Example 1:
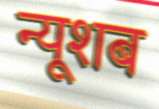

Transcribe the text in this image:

न्यूशब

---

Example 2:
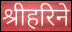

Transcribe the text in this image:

श्रीहरिने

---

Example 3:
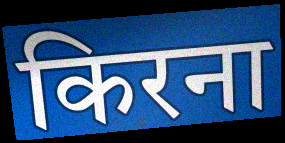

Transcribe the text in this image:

किरना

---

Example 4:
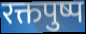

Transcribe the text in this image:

रक्तपुष्प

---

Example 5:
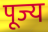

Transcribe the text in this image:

पूज्य